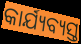
କାର୍ଯ୍ୟବ୍ୟସ୍ତ